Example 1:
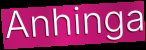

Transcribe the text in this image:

Anhinga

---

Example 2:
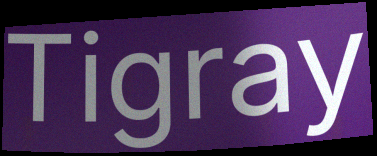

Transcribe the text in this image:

Tigray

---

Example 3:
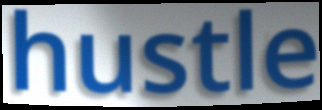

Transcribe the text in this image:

hustle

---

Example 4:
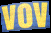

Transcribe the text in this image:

vov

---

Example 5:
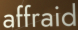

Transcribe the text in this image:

affraid